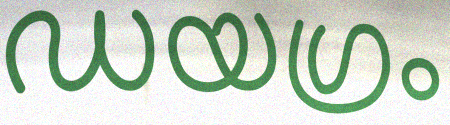
ഡയഗ്രം